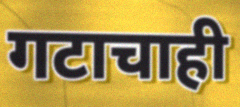
गटाचाही